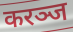
करञ्ज